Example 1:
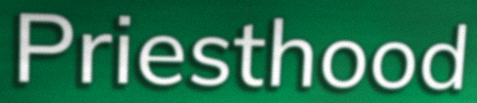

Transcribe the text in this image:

Priesthood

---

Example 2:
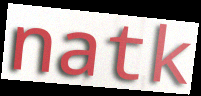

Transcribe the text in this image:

natk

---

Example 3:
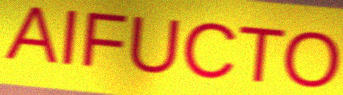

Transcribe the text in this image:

AIFUCTO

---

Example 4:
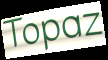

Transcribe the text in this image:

Topaz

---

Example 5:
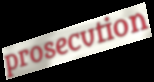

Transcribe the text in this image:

prosecution